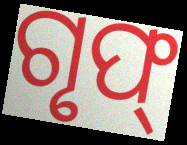
ଗୃଫ୍